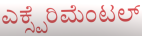
ಎಕ್ಸ್ಪೆರಿಮೆಂಟಲ್